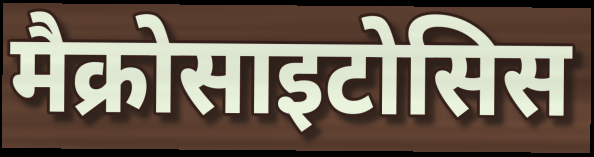
मैक्रोसाइटोसिस